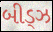
બીડ્ઝ